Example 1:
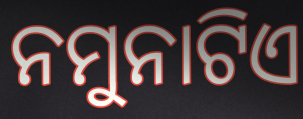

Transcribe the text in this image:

ନମୁନାଟିଏ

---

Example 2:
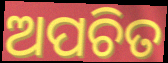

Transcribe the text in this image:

ଅପଚିତ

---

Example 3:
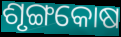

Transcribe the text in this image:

ଶୃଙ୍ଗକୋଷ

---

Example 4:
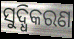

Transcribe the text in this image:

ସୁଦ୍ଧିକରଣ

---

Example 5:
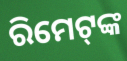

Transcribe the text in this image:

ରିମେଟ୍‍ଙ୍କ